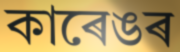
কাৰেঙৰ